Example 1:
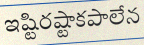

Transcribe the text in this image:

ఇష్టిరష్టాకపాలేన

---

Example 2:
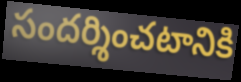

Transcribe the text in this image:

సందర్శించటానికి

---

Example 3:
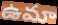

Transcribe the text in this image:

ఉమా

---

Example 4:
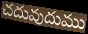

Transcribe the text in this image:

చదువుదుము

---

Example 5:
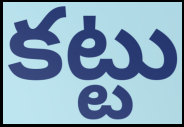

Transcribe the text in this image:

కట్టు